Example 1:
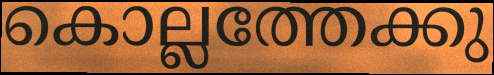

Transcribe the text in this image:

കൊല്ലത്തേക്കു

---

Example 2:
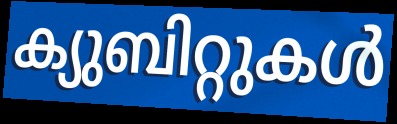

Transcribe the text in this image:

ക്യുബിറ്റുകൾ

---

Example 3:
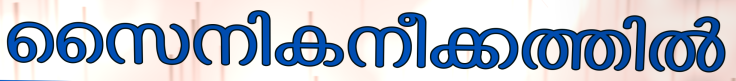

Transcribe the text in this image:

സൈനികനീക്കത്തിൽ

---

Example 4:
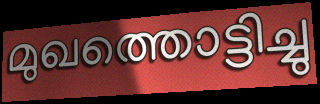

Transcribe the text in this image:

മുഖത്തൊട്ടിച്ചു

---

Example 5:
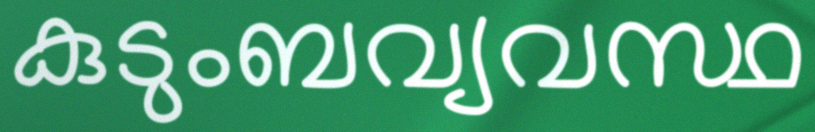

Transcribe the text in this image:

കുടുംബവ്യവസ്ഥ